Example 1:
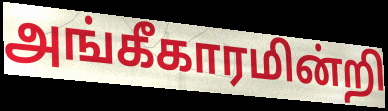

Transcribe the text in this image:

அங்கீகாரமின்றி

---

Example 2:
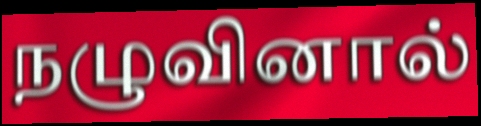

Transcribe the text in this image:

நழுவினால்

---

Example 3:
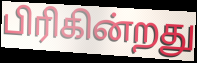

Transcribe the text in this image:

பிரிகின்றது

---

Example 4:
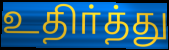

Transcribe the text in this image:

உதிர்த்து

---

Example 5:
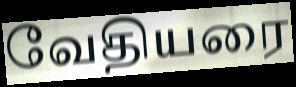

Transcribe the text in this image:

வேதியரை